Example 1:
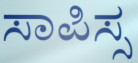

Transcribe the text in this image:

ಸಾಪಿಸ್ಸ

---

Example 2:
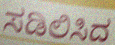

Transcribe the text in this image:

ಸಡಿಲಿಸಿದ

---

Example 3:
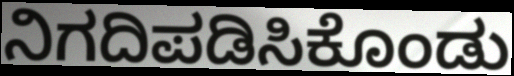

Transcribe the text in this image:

ನಿಗದಿಪಡಿಸಿಕೊಂಡು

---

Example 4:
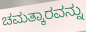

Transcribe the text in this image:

ಚಮತ್ಕಾರವನ್ನು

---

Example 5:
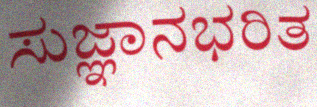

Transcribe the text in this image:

ಸುಜ್ಞಾನಭರಿತ